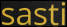
sasti